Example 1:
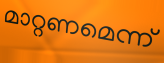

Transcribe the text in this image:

മാറ്റണമെന്ന്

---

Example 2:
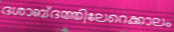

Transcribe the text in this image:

ദശാബ്ദത്തിലേറെക്കാലം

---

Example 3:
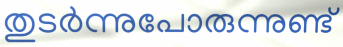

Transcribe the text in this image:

തുടർന്നുപോരുന്നുണ്ട്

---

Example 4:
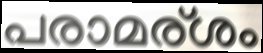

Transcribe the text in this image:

പരാമര്ശം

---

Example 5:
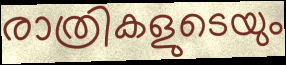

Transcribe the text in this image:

രാത്രികളുടെയും